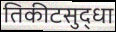
तिकीटसुद्धा